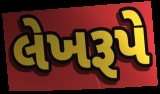
લેખરૂપે